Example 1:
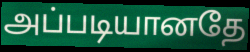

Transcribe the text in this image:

அப்படியானதே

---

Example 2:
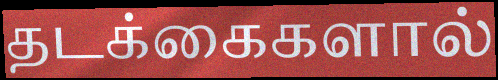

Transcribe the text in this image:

தடக்கைகளால்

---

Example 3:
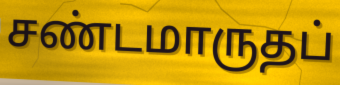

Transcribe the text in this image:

சண்டமாருதப்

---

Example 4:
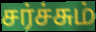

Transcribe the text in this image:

சர்ச்சும்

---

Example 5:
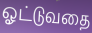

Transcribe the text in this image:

ஓட்டுவதை